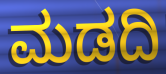
ಮಡದಿ